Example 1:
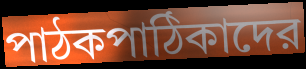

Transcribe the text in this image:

পাঠকপাঠিকাদের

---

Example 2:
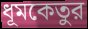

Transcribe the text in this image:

ধূমকেতুর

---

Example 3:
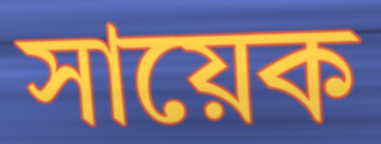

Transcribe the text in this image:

সায়েক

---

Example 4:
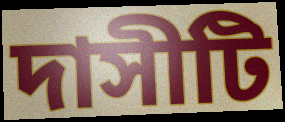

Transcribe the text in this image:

দাসীটি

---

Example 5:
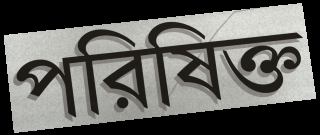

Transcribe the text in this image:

পরিষিক্ত